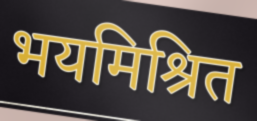
भयमिश्रित